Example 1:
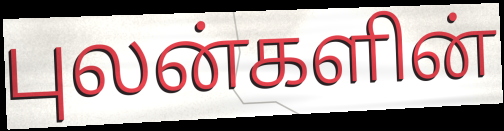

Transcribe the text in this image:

புலன்களின்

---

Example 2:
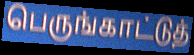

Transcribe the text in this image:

பெருங்காட்டுத்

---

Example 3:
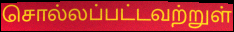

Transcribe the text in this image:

சொல்லப்பட்டவற்றுள்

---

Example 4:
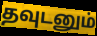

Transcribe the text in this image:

தவுடனும்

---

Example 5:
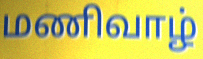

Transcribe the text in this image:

மணிவாழ்